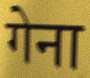
गेना